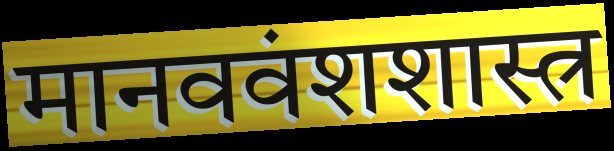
मानववंशशास्त्र